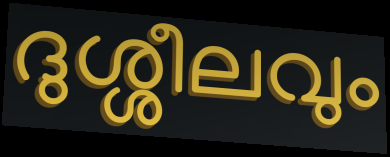
ദുശ്ശീലവും